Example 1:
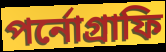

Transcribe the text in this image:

পর্নোগ্রাফি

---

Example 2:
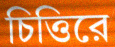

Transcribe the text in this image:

চিত্তিরে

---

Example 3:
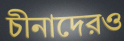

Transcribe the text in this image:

চীনাদেরও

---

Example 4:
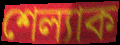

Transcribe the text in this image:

শেল্যাক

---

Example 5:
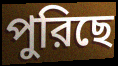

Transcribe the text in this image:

পুরিছে